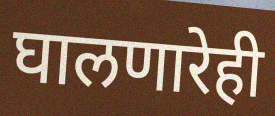
घालणारेही